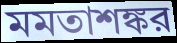
মমতাশঙ্কর